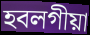
হবলগীয়া